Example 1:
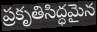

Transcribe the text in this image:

ప్రకృతిసిద్ధమైన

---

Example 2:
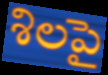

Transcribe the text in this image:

శిలపై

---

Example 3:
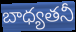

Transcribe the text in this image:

బాధ్యతనీ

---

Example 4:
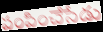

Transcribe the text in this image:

పంపించేసేడు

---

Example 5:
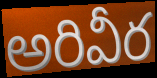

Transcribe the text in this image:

అరివీర